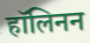
हॉलिनन